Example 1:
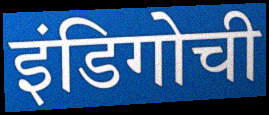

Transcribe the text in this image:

इंडिगोची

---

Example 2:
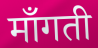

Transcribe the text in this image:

माँगती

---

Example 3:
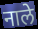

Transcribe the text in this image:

नाले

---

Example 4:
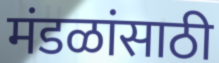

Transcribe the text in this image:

मंडळांसाठी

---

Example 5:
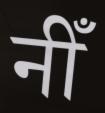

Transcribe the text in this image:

नीँ